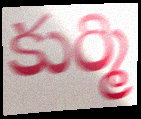
కుర్మి